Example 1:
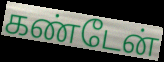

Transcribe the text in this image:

கண்டேன்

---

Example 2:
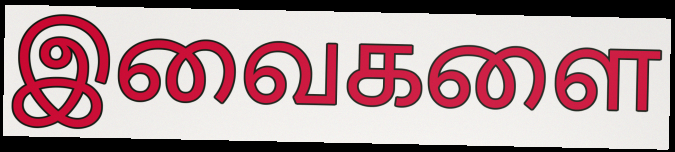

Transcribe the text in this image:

இவைகளை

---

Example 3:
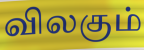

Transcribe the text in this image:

விலகும்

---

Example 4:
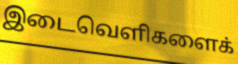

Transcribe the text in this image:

இடைவெளிகளைக்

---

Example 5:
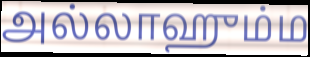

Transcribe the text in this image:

அல்லாஹும்ம